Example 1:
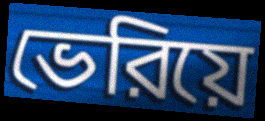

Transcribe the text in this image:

ভেরিয়ে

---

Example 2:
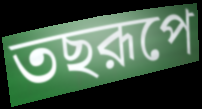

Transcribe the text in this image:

তছরূপে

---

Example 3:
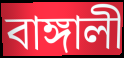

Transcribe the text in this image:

বাঙ্গালী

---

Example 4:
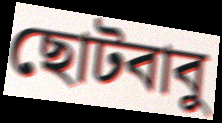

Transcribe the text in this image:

ছোটবাবু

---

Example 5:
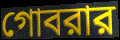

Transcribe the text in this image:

গোবরার